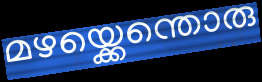
മഴയ്ക്കെന്തൊരു